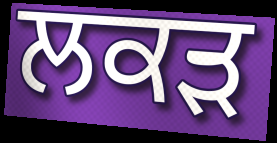
ਲਕੜ